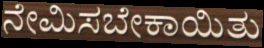
ನೇಮಿಸಬೇಕಾಯಿತು